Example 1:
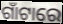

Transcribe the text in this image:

ଗାଁଟାରେ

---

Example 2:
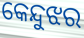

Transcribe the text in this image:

କେନ୍ଦୁଝର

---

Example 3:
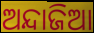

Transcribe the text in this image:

ଅନ୍ଦାଜିଆ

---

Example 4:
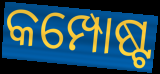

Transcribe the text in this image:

କମ୍ପୋଷ୍ଟ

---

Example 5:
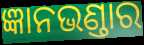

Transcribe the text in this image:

ଜ୍ଞାନଭଣ୍ଡାର